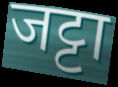
जट्टा